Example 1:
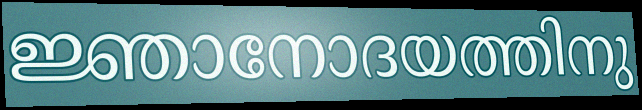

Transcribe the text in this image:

ജ്ഞാനോദയത്തിനു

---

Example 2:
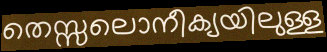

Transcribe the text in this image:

തെസ്സലൊനീക്യയിലുള്ള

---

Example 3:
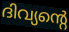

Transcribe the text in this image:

ദിവ്യന്റെ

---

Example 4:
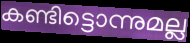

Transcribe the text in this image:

കണ്ടിട്ടൊന്നുമല്ല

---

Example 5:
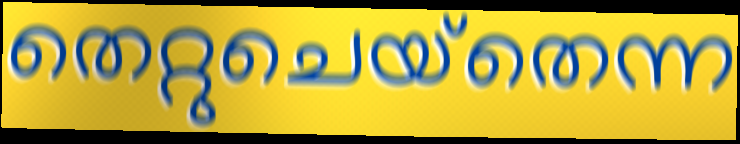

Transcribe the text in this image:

തെറ്റുചെയ്‌തെന്ന